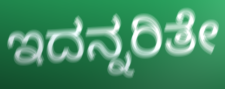
ಇದನ್ನರಿತೇ